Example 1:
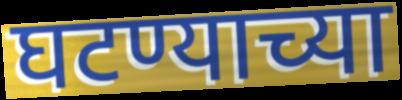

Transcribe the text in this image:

घटण्याच्या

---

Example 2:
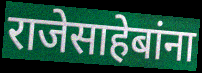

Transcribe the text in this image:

राजेसाहेबांना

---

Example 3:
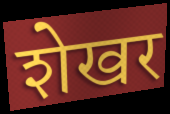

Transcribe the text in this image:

शेखर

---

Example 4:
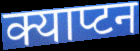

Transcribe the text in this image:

क्याप्टन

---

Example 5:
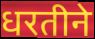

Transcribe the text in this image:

धरतीने